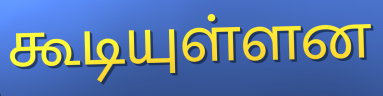
கூடியுள்ளன